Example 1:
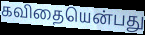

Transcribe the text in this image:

கவிதையென்பது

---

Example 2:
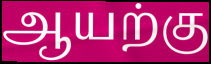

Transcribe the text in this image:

ஆயற்கு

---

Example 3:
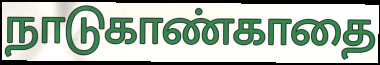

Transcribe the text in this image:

நாடுகாண்காதை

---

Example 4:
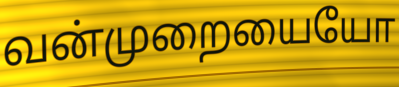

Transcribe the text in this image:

வன்முறையையோ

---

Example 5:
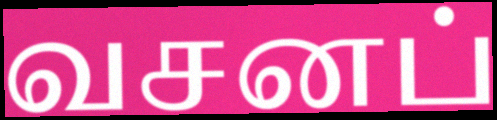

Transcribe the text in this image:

வசனப்